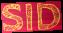
SID